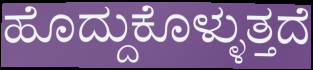
ಹೊದ್ದುಕೊಳ್ಳುತ್ತದೆ